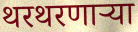
थरथरणाऱ्या